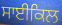
ਸਾਈਕਿਲ